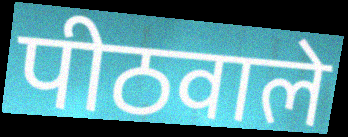
पीठवाले